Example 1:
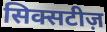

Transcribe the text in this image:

सिक्सटीज़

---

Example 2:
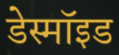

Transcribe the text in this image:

डेस्मॉइड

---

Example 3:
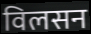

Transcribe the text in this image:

विलसन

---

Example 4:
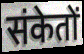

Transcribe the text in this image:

संकेतों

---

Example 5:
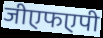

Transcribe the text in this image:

जीएफएपी